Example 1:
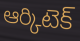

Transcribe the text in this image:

ఆర్కిటెక్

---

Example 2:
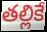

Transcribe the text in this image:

తల్లికే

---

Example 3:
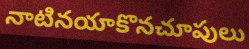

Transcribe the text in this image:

నాటినయాకొనచూపులు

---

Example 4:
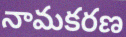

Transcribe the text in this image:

నామకరణ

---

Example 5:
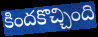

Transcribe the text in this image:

కిందకొచ్చింది